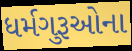
ધર્મગુરૂઓના